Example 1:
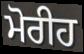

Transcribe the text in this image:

ਮੋਰੀਹ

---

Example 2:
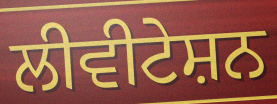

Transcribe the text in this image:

ਲੀਵੀਟੇਸ਼ਨ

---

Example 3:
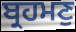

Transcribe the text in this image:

ਬ੍ਰਹਮਣੁ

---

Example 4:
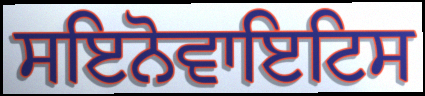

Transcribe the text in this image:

ਸਇਨੋਵਾਇਟਿਸ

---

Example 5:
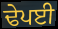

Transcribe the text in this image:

ਢੇਪਈ